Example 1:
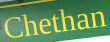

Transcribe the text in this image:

Chethan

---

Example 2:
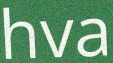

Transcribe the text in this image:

hva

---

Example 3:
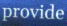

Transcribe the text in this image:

provide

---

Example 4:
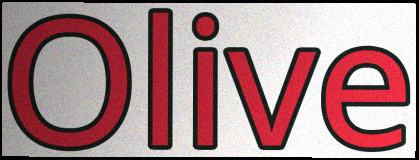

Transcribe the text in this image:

Olive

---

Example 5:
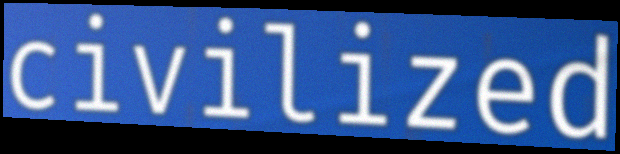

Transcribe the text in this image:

civilized